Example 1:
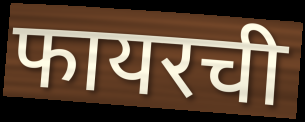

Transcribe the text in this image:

फायरची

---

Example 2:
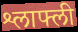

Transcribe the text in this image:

श्लाफ्ली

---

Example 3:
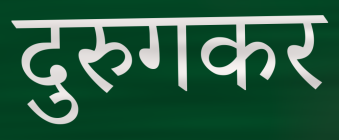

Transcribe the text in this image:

दुरुगकर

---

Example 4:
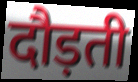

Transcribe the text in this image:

दौड़ती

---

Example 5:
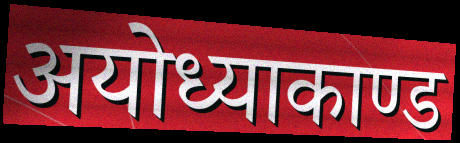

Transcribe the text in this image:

अयोध्याकाण्ड